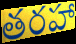
తరహా